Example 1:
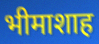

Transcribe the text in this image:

भीमाशाह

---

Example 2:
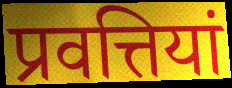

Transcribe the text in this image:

प्रवत्तियां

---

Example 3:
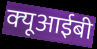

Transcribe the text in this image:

क्यूआईबी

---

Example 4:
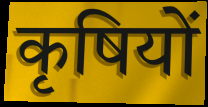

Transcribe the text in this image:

कृषियों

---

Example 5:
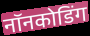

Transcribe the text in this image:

नॉनकोडिंग